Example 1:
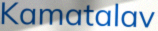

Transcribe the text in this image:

Kamatalav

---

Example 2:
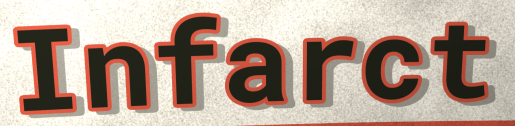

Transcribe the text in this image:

Infarct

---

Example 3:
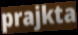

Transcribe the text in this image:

prajkta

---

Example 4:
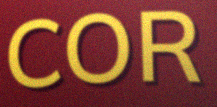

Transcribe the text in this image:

COR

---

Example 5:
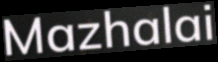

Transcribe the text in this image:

Mazhalai